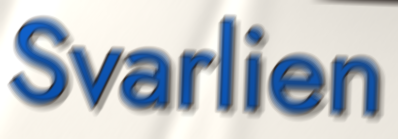
Svarlien